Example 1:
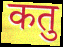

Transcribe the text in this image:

कतु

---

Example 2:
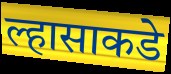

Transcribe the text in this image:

ल्हासाकडे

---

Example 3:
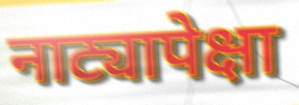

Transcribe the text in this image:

नाट्यापेक्षा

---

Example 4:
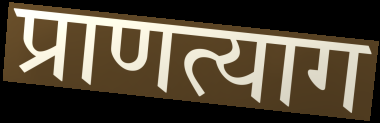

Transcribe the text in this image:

प्राणत्याग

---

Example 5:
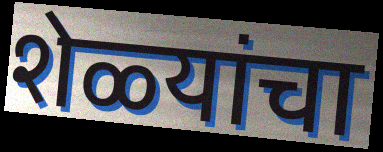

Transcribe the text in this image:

शेळ्यांचा